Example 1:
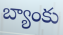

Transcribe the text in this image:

బ్యాంకు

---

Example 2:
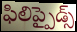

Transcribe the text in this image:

ఫిలిప్పైడ్స్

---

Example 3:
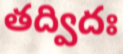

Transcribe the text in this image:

తద్విదః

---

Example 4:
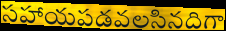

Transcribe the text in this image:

సహాయపడవలసినదిగా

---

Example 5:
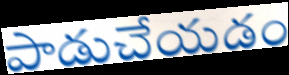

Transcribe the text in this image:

పాడుచేయడం